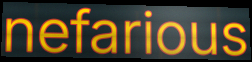
nefarious